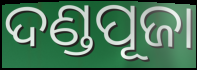
ଦଣ୍ଡପୂଜା